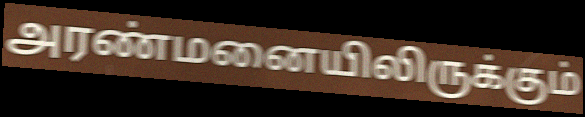
அரண்மனையிலிருக்கும்